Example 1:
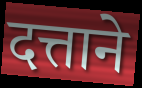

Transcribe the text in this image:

दत्ताने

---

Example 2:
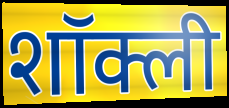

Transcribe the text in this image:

शॉक्ली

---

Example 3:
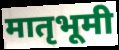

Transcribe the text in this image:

मातृभूमी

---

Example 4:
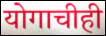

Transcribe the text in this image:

योगाचीही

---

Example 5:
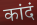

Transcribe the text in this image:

कांदं